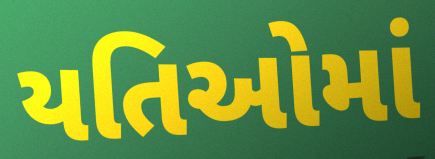
યતિઓમાં